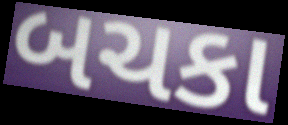
બચકા